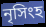
নৃসিংহ